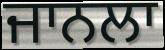
ਜਾਨਲਾ